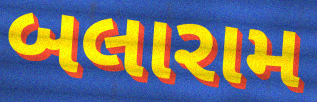
બલારામ